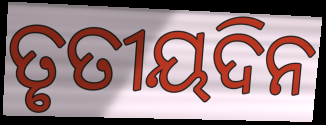
ତୃତୀୟଦିନ